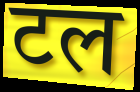
टल